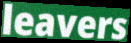
leavers